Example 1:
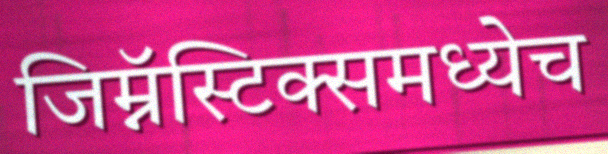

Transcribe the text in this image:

जिम्नॅस्टिक्समध्येच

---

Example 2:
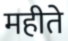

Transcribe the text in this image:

महीते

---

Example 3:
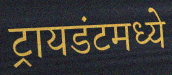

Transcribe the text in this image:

ट्रायडंटमध्ये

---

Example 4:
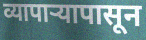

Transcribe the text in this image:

व्यापाऱ्यापासून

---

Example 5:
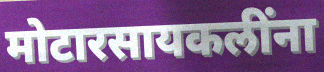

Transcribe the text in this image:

मोटारसायकलींना